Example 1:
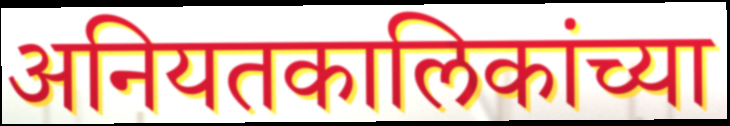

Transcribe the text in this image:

अनियतकालिकांच्या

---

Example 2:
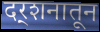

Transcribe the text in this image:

दर्शनातून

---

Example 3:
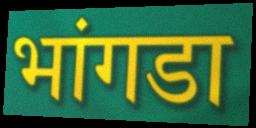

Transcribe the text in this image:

भांगडा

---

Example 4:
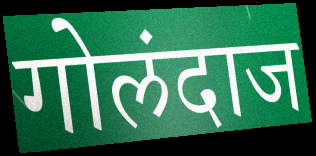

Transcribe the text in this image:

गोलंदाज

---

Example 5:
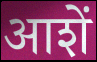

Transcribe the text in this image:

आशें